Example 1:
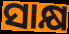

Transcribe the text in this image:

ସାକ୍ଷ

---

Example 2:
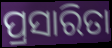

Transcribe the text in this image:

ପ୍ରସାରିତା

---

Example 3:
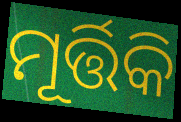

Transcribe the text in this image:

ମୂର୍ତ୍ତିକି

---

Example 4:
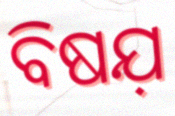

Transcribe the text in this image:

ବିଷଯ଼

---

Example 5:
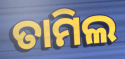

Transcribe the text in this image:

ତାମିଲ